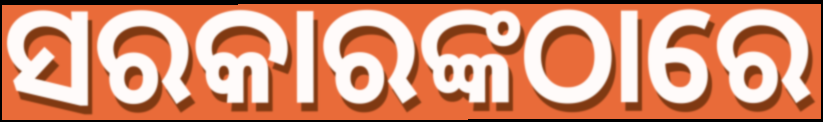
ସରକାରଙ୍କଠାରେ